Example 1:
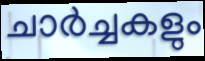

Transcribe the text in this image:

ചാർച്ചകളും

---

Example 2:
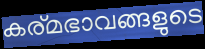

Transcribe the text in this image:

കര്മഭാവങ്ങളുടെ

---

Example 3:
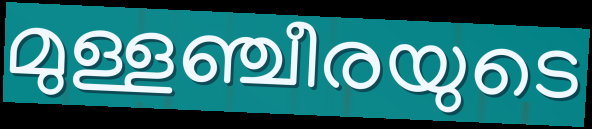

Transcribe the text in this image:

മുള്ളഞ്ചീരയുടെ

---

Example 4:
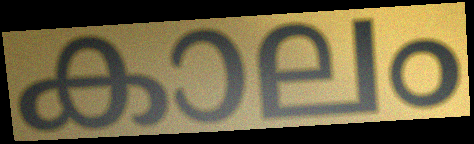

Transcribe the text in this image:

കാലം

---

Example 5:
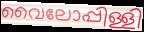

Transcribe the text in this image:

വൈലോപ്പിള്ളി